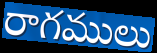
రాగములు